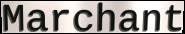
Marchant